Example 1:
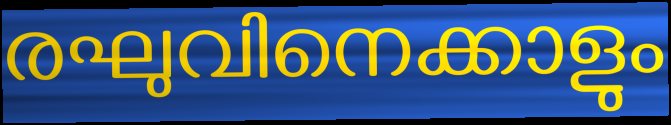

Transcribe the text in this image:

രഘുവിനെക്കാളും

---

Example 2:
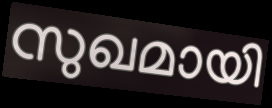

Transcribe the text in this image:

സുഖമായി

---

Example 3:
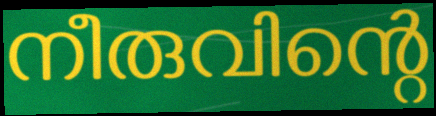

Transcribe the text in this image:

നീരുവിന്റെ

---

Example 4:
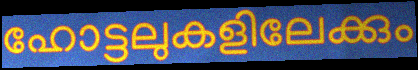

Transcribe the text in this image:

ഹോട്ടലുകളിലേക്കും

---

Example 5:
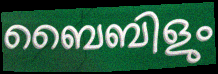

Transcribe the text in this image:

ബൈബിളും